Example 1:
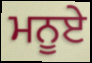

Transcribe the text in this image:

ਮਨੂਏ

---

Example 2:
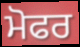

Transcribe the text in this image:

ਮੋਫਰ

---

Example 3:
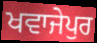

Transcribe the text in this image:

ਖਵਾਜੇਪੁਰ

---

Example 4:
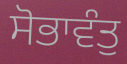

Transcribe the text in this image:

ਸੋਭਾਵੰਤੁ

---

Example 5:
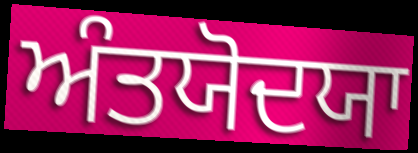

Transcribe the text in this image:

ਅੰਤਯੋਦਯਾ